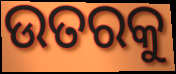
ଉତରକୁ